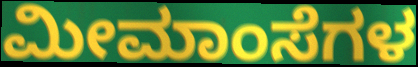
ಮೀಮಾಂಸೆಗಳ